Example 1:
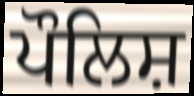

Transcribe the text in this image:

ਪੌਲਿਸ਼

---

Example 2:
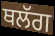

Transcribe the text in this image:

ਥਲੱਗ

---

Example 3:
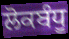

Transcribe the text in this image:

ਲੋਕਬੰਧੂ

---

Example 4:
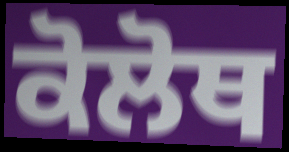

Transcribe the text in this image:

ਕੋਲੋਥ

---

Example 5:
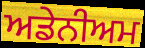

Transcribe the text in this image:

ਅਡੇਨੀਅਮ